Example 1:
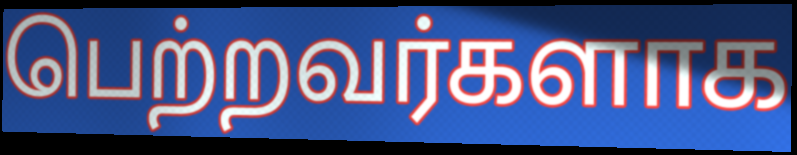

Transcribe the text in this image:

பெற்றவர்களாக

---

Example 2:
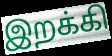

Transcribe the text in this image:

இறக்கி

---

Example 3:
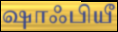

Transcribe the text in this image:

ஷாஃபியீ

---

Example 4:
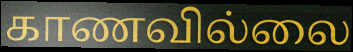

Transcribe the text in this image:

காணவில்லை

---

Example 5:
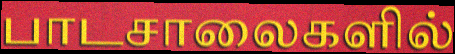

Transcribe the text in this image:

பாடசாலைகளில்